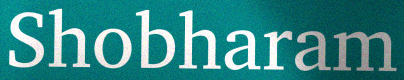
Shobharam